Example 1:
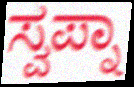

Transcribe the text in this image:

ಸ್ವಪ್ನಾ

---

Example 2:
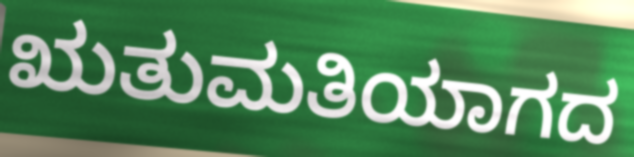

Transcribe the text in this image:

ಋತುಮತಿಯಾಗದ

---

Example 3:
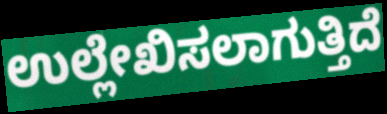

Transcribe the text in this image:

ಉಲ್ಲೇಖಿಸಲಾಗುತ್ತಿದೆ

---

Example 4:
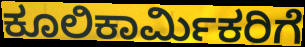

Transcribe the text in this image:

ಕೂಲಿಕಾರ್ಮಿಕರಿಗೆ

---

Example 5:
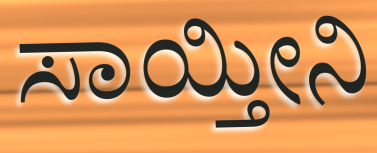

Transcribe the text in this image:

ಸಾಯ್ತೀನಿ